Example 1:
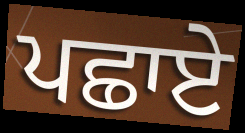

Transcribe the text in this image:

ਪਛਾਏ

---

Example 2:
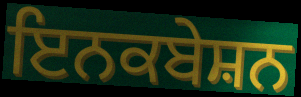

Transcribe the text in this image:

ਇਨਕਬੇਸ਼ਨ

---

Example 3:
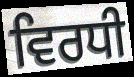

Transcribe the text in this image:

ਵਿਰਧੀ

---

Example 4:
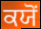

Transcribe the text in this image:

ਕਯੋਂ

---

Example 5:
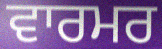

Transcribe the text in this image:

ਵਾਰਮਰ